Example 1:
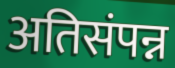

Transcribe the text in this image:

अतिसंपन्न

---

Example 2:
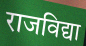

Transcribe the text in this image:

राजविद्या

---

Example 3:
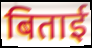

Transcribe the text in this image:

बिताई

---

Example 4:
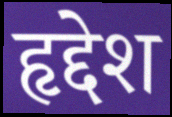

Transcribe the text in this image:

हृद्देश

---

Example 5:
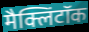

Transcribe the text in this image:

मैक्लिंटॉक